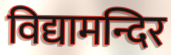
विद्यामन्दिर